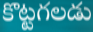
కొట్టగలడు